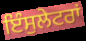
ਇੰਸੁਲੇਟਰਾਂ